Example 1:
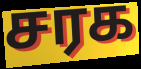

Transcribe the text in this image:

சரக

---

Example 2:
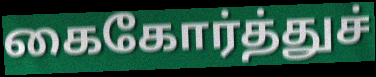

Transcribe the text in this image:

கைகோர்த்துச்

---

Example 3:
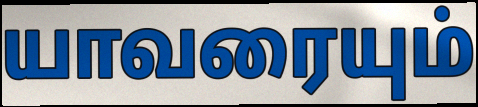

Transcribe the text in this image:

யாவரையும்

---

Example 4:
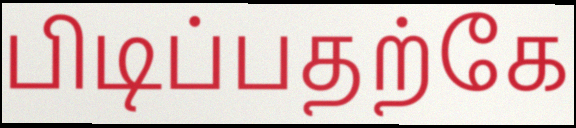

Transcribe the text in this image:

பிடிப்பதற்கே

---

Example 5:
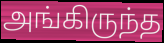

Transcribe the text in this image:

அங்கிருந்த